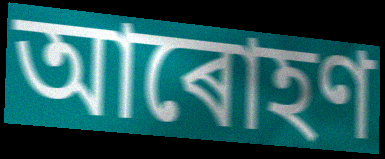
আৰোহণ